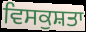
ਵਿਸਕੁਸ਼ਤਾ